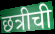
छत्रीची